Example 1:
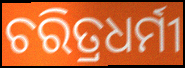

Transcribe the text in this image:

ଚରିତ୍ରଧର୍ମୀ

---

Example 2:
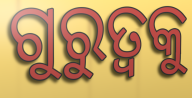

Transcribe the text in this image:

ଗୁରୁତ୍ୱକୁ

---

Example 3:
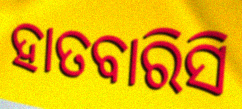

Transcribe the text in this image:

ହାତବାରିସି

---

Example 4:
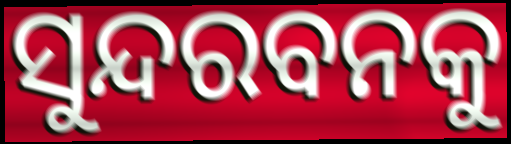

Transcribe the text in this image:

ସୁନ୍ଦରବନକୁ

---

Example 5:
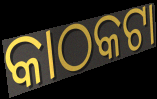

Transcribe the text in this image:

କାଠକଟା